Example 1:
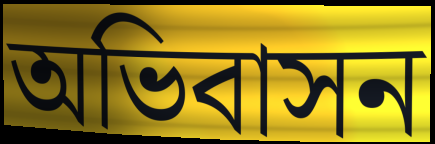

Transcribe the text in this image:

অভিবাসন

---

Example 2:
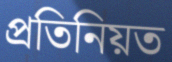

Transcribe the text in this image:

প্ৰতিনিয়ত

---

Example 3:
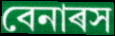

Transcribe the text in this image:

বেনাৰস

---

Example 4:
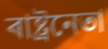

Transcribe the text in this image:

ৰাষ্ট্ৰনেতা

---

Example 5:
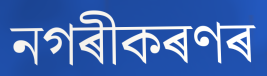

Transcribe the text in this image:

নগৰীকৰণৰ